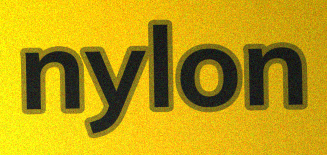
nylon